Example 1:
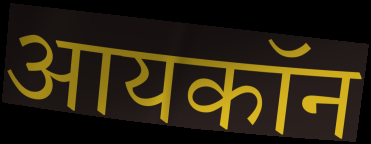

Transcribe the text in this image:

आयकॉन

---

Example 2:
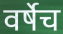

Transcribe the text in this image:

वर्षेच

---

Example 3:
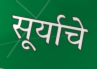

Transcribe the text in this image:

सूर्याचे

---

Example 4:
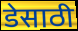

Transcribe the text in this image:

डेसाठी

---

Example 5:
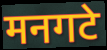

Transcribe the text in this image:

मनगटे